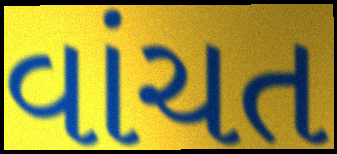
વાંચત